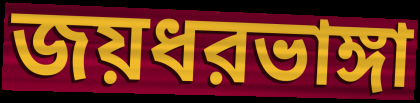
জয়ধরভাঙ্গা